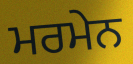
ਮਰਮੇਨ